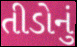
તીડોનું